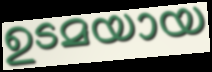
ഉടമയായ